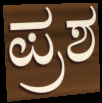
ಪ್ರಶ